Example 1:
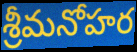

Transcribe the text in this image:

శ్రీమనోహర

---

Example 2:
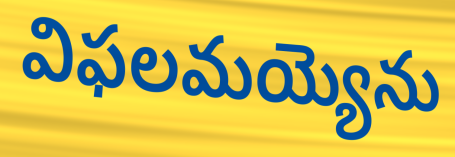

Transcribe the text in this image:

విఫలమయ్యెను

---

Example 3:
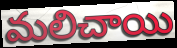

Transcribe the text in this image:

మలిచాయి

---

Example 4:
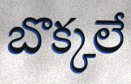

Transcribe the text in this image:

బొక్కలే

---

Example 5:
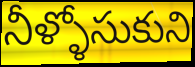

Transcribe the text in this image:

నీళ్ళోసుకుని